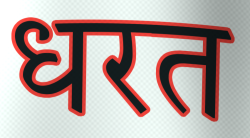
धरत